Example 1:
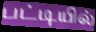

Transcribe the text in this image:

பட்டியில்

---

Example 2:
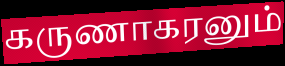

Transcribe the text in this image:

கருணாகரனும்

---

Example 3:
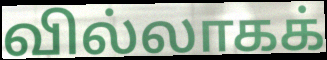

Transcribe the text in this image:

வில்லாகக்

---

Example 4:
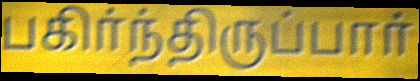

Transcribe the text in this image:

பகிர்ந்திருப்பார்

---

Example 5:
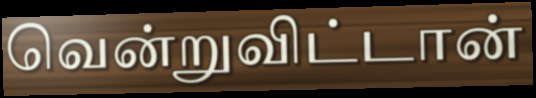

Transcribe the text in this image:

வென்றுவிட்டான்